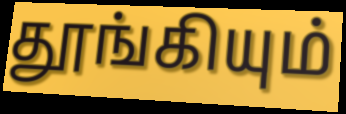
தூங்கியும்